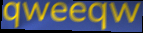
qweeqw